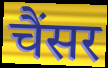
चैंसर